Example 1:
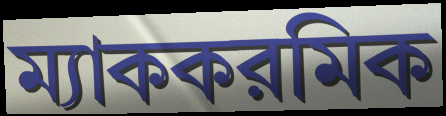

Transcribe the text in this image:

ম্যাককরমিক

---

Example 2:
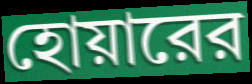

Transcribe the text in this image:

হোয়ারের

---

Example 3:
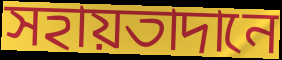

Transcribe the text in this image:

সহায়তাদানে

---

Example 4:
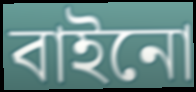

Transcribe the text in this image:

বাইনো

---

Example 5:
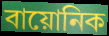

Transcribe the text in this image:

বায়োনিক